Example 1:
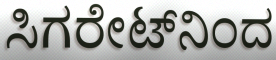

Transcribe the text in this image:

ಸಿಗರೇಟ್‌ನಿಂದ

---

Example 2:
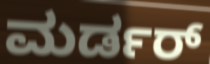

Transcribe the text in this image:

ಮರ್ಡರ್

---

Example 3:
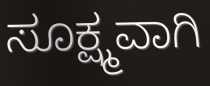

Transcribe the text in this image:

ಸೂಕ್ಷ್ಮವಾಗಿ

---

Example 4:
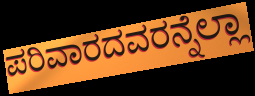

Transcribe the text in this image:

ಪರಿವಾರದವರನ್ನೆಲ್ಲಾ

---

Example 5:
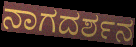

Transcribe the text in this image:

ನಾಗದರ್ಶನ